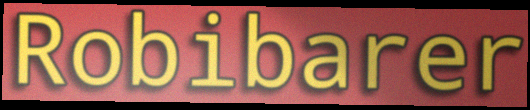
Robibarer